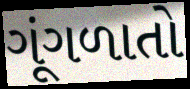
ગૂંગળાતો